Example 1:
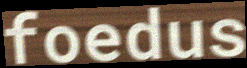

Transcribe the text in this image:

foedus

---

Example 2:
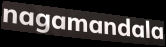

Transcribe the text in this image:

nagamandala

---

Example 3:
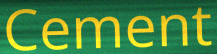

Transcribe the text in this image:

Cement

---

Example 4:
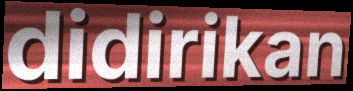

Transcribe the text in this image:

didirikan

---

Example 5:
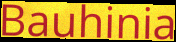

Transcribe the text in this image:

Bauhinia